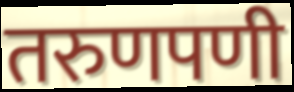
तरुणपणी